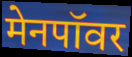
मेनपॉवर